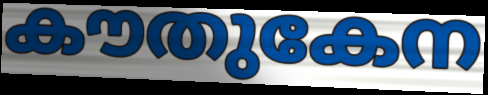
കൗതുകേന